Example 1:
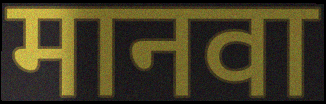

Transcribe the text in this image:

मानवा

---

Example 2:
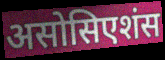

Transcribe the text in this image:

असोसिएशंस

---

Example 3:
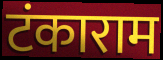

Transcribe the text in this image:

टंकाराम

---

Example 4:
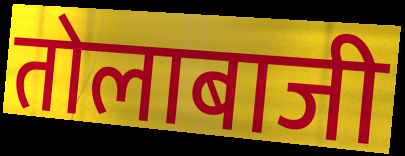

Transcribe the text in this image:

तोलाबाजी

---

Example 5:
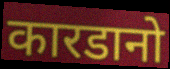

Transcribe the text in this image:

कारडानो